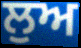
ਲੁਅ